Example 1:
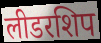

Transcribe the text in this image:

लीडरशिप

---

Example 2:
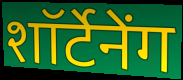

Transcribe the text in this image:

शॉर्टेनेंग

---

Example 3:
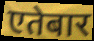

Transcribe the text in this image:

एतेबार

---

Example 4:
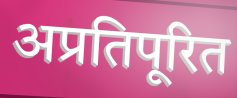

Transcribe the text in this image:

अप्रतिपूरित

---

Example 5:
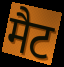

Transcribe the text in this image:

मैट